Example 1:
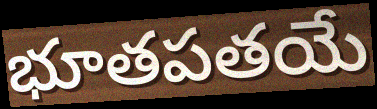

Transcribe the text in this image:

భూతపతయే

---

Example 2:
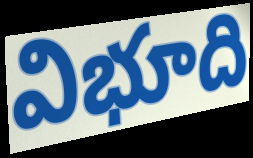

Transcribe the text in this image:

విభూది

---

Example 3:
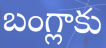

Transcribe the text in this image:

బంగ్లాకు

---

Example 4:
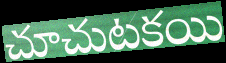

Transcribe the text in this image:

చూచుటకయి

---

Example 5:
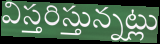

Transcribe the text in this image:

విస్తరిస్తున్నట్లు